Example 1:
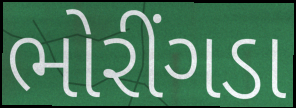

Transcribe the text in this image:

ભોરીંગડા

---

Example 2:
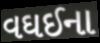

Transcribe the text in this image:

વઘઈના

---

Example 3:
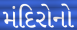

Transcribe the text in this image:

મંદિરોનો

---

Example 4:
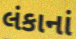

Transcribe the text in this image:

લંકાનાં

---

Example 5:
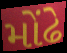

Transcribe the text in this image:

મોંઢે